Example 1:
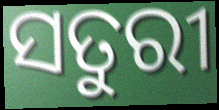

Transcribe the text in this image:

ସତୁରୀ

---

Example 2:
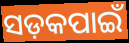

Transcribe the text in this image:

ସଡ଼କପାଇଁ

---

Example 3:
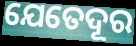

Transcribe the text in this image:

ଯେତେଦୂର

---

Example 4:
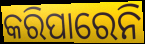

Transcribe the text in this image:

କରିପାରେନି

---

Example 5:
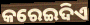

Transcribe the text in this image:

କରେଇଦିଏ